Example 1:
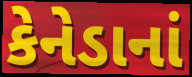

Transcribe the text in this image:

કેનેડાનાં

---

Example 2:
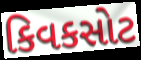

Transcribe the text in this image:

કિવકસોટ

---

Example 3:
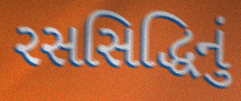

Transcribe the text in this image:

રસસિદ્ધિનું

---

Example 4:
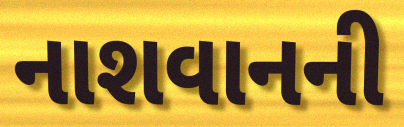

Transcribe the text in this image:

નાશવાનની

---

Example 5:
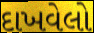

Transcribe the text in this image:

દાખવેલો